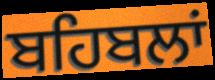
ਬਹਿਬਲਾਂ